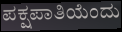
ಪಕ್ಷಪಾತಿಯೆಂದು